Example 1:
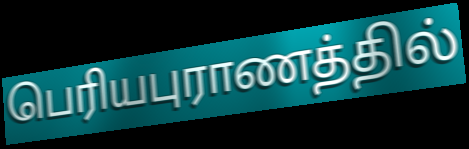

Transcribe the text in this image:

பெரியபுராணத்தில்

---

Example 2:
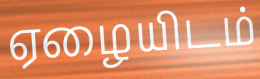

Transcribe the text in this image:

ஏழையிடம்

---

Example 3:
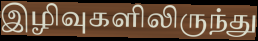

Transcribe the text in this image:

இழிவுகளிலிருந்து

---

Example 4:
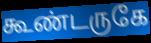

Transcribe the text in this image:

கூண்டருகே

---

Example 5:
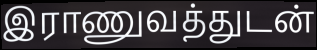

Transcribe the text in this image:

இராணுவத்துடன்